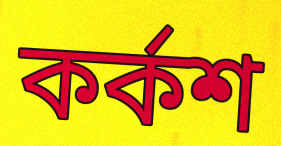
কর্কশ